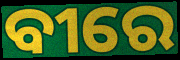
ବୀରେ